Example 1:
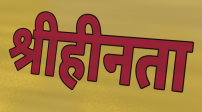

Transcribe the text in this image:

श्रीहीनता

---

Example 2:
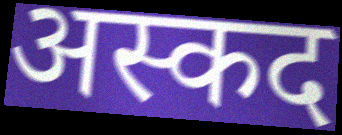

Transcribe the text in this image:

अस्कद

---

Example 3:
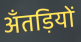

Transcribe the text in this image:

अँतड़ियों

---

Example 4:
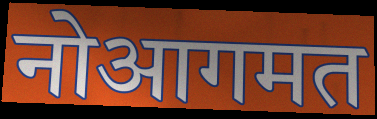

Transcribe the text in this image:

नोआगमत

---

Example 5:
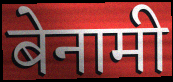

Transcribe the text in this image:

बेनामी